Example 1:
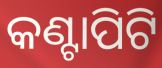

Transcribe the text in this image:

କଣ୍ଟାପିଟି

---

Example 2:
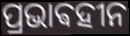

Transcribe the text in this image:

ପ୍ରଭାଵହୀନ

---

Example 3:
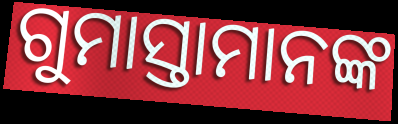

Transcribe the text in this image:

ଗୁମାସ୍ତାମାନଙ୍କ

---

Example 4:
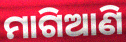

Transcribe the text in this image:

ମାଗିଆଣି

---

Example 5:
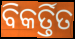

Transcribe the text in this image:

ବିକର୍ତ୍ତିତ